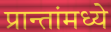
प्रान्तांमध्ये